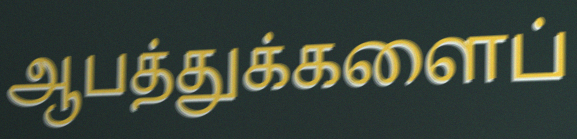
ஆபத்துக்களைப்